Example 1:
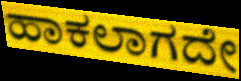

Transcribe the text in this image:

ಹಾಕಲಾಗದೇ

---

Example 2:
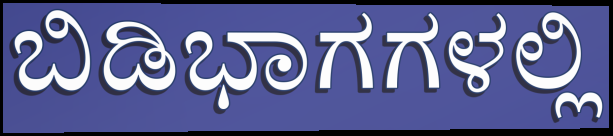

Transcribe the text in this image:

ಬಿಡಿಭಾಗಗಳಲ್ಲಿ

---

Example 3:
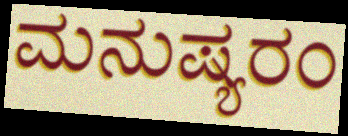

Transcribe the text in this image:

ಮನುಷ್ಯರಂ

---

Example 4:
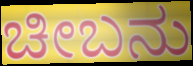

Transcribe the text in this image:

ಚೀಬನು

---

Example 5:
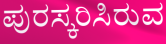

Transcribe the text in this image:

ಪುರಸ್ಕರಿಸಿರುವ